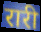
रारी